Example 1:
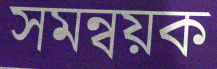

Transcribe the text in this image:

সমন্বয়ক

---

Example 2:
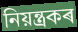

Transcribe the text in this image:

নিয়ন্ত্ৰকৰ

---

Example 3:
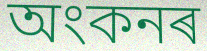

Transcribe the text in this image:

অংকনৰ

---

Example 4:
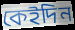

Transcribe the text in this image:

কেইদিন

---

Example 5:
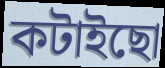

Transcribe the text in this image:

কটাইছো